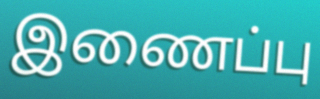
இணைப்பு